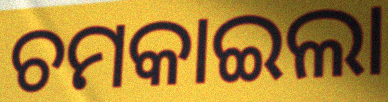
ଚମକାଇଲା